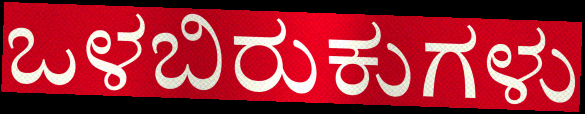
ಒಳಬಿರುಕುಗಳು